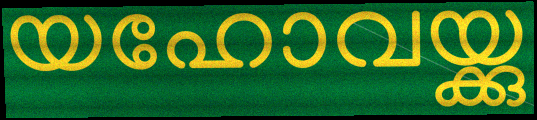
യഹോവയ്ക്കു